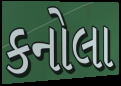
કનોલા